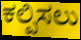
ಕಲ್ಪಿಸಲು